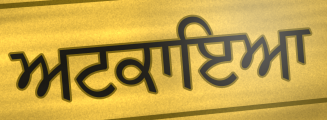
ਅਟਕਾਇਆ